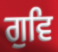
ਗੁਵਿ